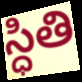
స్ధితి